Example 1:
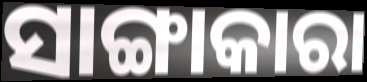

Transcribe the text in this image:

ସାଙ୍ଗାକାରା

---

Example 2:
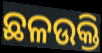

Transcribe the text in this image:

ଛଳଉକ୍ତି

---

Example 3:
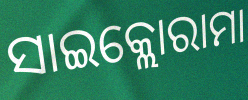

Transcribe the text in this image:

ସାଇକ୍ଲୋରାମା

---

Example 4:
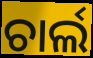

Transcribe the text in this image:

ଚାର୍ଲ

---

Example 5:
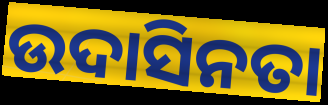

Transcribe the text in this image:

ଉଦାସିନତା